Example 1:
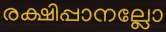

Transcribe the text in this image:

രക്ഷിപ്പാനല്ലോ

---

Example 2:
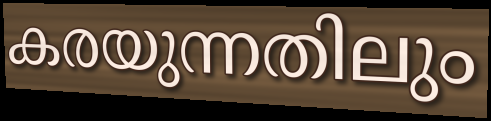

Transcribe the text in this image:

കരയുന്നതിലും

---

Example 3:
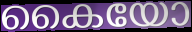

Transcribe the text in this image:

കൈയോ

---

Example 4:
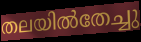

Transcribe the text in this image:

തലയിൽതേച്ചു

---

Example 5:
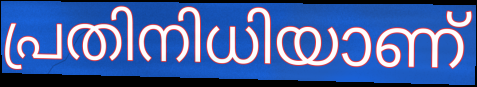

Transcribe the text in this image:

പ്രതിനിധിയാണ്